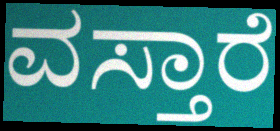
ವಸ್ತಾರೆ